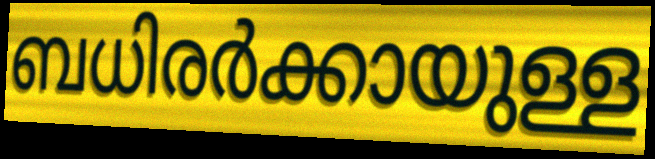
ബധിരർക്കായുള്ള